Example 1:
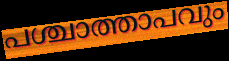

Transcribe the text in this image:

പശ്ചാത്താപവും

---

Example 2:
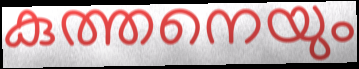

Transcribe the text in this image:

കുത്തനെയും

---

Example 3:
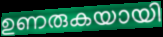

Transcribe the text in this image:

ഉണരുകയായി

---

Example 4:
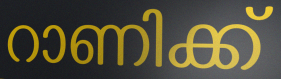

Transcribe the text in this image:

റാണിക്ക്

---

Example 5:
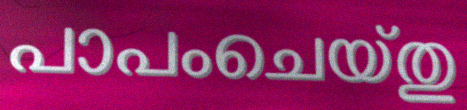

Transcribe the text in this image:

പാപംചെയ്തു